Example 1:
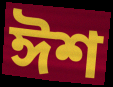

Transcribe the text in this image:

ঈশ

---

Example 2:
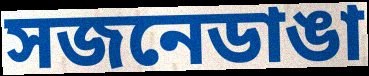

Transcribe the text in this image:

সজনেডাঙা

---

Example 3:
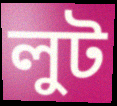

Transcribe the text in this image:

লুট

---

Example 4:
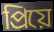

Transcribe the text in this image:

প্রিয়ে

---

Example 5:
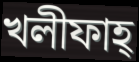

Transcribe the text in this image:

খলীফাহ্